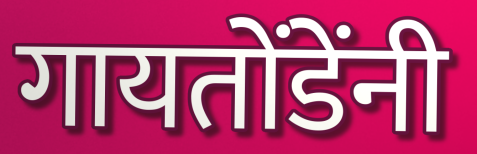
गायतोंडेंनी